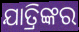
ଯାତ୍ରିଙ୍କର